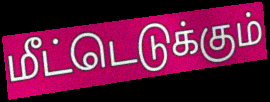
மீட்டெடுக்கும்